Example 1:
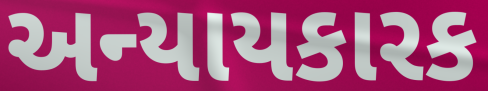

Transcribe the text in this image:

અન્યાયકારક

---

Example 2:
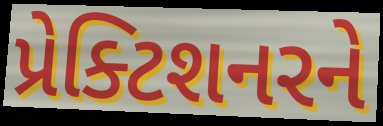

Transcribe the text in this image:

પ્રેક્ટિશનરને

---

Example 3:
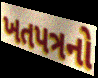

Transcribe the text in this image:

ખતપત્રનો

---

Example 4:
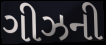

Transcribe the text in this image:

ગીઝની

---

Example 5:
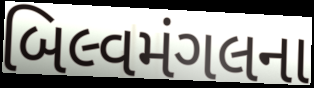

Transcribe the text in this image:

બિલ્વમંગલના